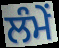
ਲੰਮੇਂ